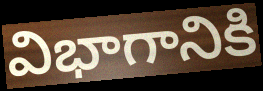
విభాగానికి